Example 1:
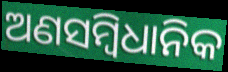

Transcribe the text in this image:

ଅଣସମ୍ବିଧାନିକ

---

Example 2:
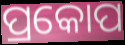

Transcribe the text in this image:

ପ୍ରକୋପ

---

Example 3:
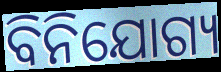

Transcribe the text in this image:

ବିନିଯୋଗ୍ୟ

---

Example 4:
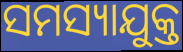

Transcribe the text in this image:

ସମସ୍ୟାଯୁକ୍ତ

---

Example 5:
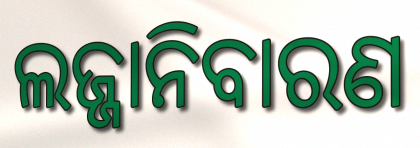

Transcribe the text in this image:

ଲଜ୍ଜାନିବାରଣ